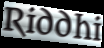
Riddhi